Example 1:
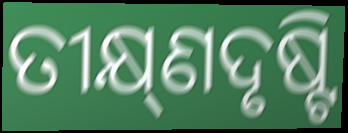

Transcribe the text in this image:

ତୀକ୍ଷ୍‌ଣଦୃଷ୍ଟି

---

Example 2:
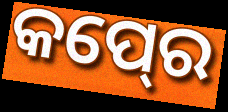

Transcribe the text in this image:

କପ୍‍ରେ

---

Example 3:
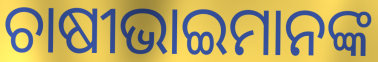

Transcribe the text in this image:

ଚାଷୀଭାଇମାନଙ୍କ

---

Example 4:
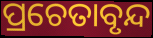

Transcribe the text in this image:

ପ୍ରଚେତାବୃନ୍ଦ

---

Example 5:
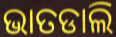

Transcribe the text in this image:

ଭାତଡାଲି